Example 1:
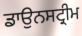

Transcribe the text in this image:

ਡਾਉਨਸਟ੍ਰੀਮ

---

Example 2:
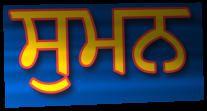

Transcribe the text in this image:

ਸੁਮਨ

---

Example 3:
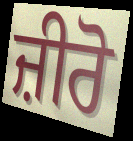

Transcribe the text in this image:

ਜ਼ੀਰੋ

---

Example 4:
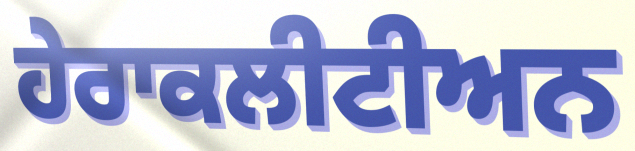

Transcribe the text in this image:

ਹੇਰਾਕਲੀਟੀਅਨ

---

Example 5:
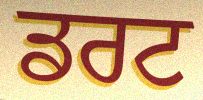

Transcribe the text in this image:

ਡਰਟ